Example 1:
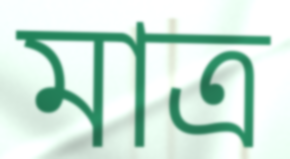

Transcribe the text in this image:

মাত্র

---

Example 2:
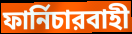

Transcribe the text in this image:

ফার্নিচারবাহী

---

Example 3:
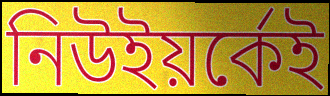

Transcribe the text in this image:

নিউইয়র্কেই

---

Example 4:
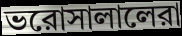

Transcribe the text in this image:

ভরোসালালেরা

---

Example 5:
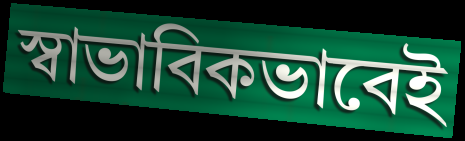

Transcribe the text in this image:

স্বাভাবিকভাবেই